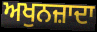
ਅਖੁਨਜ਼ਾਦਾ